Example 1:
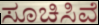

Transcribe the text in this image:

ಸೂಚಿಸಿವೆ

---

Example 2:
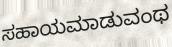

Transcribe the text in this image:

ಸಹಾಯಮಾಡುವಂಥ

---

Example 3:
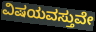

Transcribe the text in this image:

ವಿಷಯವಸ್ತುವೇ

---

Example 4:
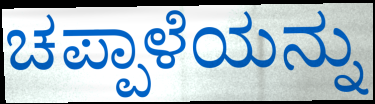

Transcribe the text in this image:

ಚಪ್ಪಾಳೆಯನ್ನು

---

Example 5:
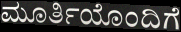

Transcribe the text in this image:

ಮೂರ್ತಿಯೊಂದಿಗೆ